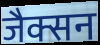
जैक्सन